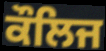
ਕੌਲਿਜ